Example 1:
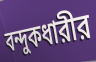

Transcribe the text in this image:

বন্দুকধারীর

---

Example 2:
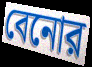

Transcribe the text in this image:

বেনোর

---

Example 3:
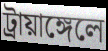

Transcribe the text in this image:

ট্রায়াঙ্গেলে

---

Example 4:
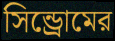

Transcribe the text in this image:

সিন্ড্রোমের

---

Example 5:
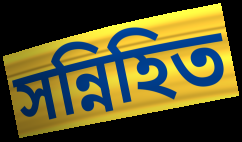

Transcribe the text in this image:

সন্নিহিত